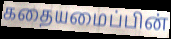
கதையமைப்பின்